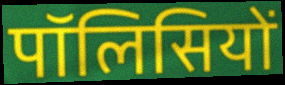
पॉलिसियों